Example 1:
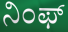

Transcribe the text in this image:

ನಿಂಫ್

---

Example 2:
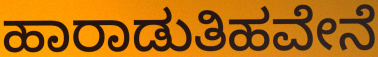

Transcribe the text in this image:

ಹಾರಾಡುತಿಹವೇನೆ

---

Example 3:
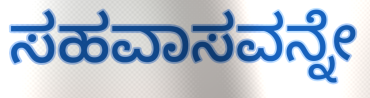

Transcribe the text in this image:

ಸಹವಾಸವನ್ನೇ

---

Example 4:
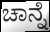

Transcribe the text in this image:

ಚಾನ್ನೆ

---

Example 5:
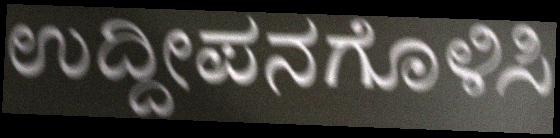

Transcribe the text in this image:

ಉದ್ದೀಪನಗೊಳಿಸಿ